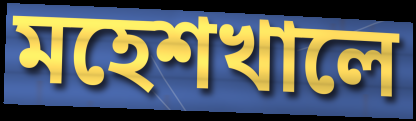
মহেশখালে